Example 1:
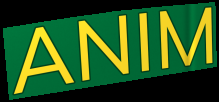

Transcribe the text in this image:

ANIM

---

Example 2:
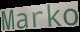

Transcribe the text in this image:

Marko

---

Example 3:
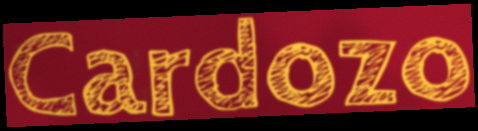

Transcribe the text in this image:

Cardozo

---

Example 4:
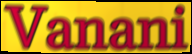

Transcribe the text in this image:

Vanani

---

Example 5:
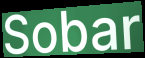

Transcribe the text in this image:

Sobar